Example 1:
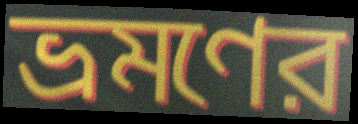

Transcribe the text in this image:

ভ্রমণের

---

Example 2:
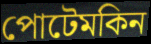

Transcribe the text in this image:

পোটেমকিন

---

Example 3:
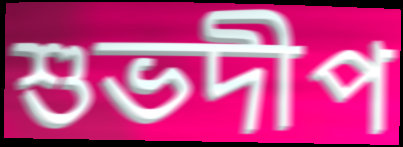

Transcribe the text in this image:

শুভদীপ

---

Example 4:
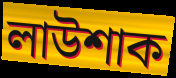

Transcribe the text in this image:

লাউশাক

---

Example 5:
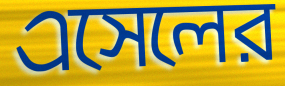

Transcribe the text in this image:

এসেলের